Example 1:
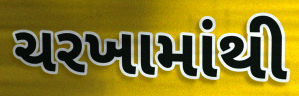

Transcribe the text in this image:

ચરખામાંથી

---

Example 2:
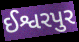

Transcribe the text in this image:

ઈશ્વરપુર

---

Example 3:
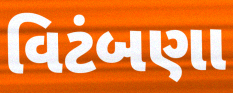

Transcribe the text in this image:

વિટંબણા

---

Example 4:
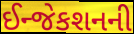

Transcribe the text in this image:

ઈન્જેકશનની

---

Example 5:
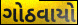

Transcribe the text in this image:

ગોઠવાયો